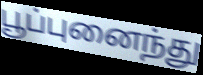
பூப்புனைந்து